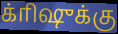
க்ரிஷுக்கு